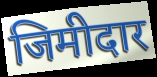
जिमीदार